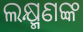
ଲକ୍ଷ୍ମଣଙ୍କ